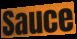
Sauce